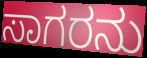
ಸಾಗರನು